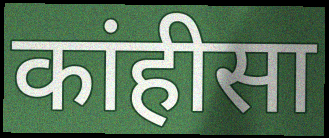
कांहीसा